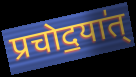
प्रचो॒दया॑त्